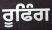
ਰੂਫਿੰਗ